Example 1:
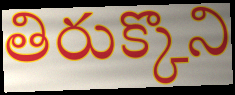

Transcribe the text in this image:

తిరుక్కొని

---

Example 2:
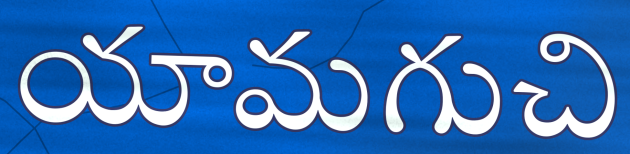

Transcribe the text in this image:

యామగుచి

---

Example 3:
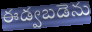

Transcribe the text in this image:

ఈడ్వబడెను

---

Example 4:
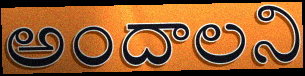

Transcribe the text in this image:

అందాలని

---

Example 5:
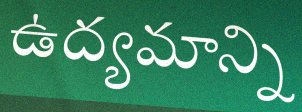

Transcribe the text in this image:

ఉద్యమాన్ని